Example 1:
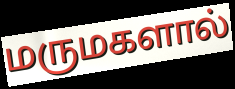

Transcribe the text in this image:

மருமகளால்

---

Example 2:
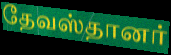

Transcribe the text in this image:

தேவஸ்தானர்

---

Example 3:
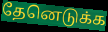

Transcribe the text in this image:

தேனெடுக்க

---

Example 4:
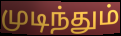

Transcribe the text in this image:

முடிந்தும்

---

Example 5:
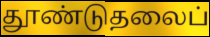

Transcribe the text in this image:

தூண்டுதலைப்